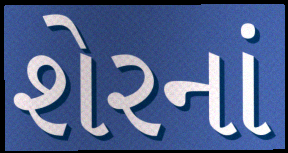
શેરનાં